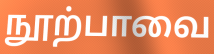
நூற்பாவை